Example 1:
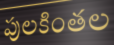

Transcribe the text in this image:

పులకింతల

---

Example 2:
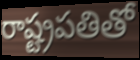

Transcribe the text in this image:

రాష్ట్రపతితో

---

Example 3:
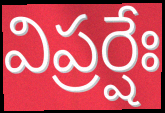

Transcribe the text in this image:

విప్రర్షేః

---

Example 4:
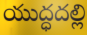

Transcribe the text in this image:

యుద్ధదల్లి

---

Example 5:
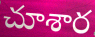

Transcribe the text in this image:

చూశార